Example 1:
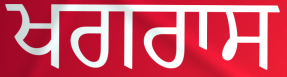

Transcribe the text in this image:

ਖਗਰਾਸ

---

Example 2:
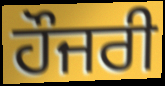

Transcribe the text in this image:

ਹੌਜਰੀ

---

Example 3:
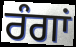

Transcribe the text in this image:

ਰੰਗਾਂ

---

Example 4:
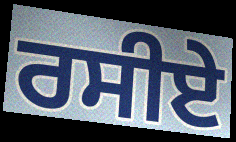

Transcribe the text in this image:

ਰਸੀਏ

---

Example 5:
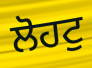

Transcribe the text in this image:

ਲੋਹਟੁ